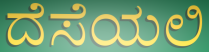
ದೆಸೆಯಲಿ